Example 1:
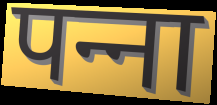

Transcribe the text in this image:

पन्‍ना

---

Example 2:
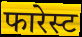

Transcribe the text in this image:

फारेस्‍ट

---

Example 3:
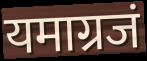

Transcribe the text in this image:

यमाग्रजं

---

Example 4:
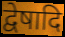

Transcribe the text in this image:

द्वेषादि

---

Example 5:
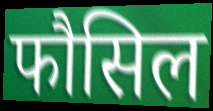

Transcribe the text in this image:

फौसिल